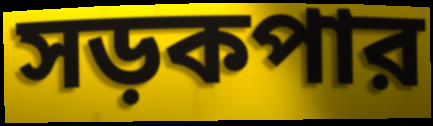
সড়কপার